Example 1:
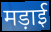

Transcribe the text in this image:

मड़ाई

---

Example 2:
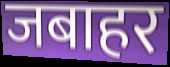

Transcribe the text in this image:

जबाहर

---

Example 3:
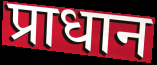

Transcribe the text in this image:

प्राधान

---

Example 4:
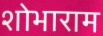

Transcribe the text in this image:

शोभाराम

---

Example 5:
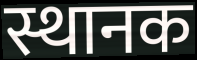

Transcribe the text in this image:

स्थानक